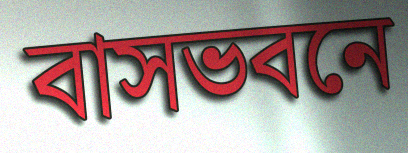
বাসভবনে